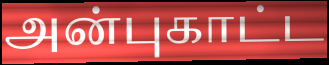
அன்புகாட்ட